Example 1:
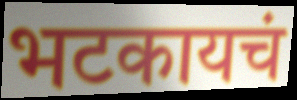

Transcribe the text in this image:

भटकायचं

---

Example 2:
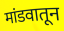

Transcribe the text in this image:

मांडवातून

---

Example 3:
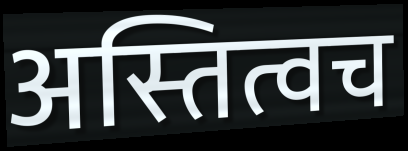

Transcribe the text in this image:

अस्तित्वच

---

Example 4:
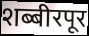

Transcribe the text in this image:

शब्बीरपूर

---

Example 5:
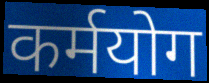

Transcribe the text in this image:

कर्मयोग